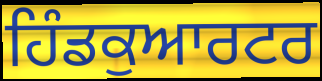
ਹਿੰਡਕੁਆਰਟਰ